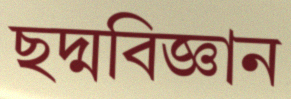
ছদ্মবিজ্ঞান